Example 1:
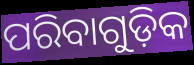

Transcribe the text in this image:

ପରିବାଗୁଡ଼ିକ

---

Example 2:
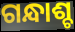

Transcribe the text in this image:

ଗନ୍ଧାଶ୍ଚ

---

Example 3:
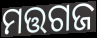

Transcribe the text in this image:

ମତ୍ତଗଜ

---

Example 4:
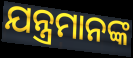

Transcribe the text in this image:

ଯନ୍ତ୍ରମାନଙ୍କ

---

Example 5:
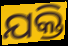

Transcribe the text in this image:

ଯକ୍ତି